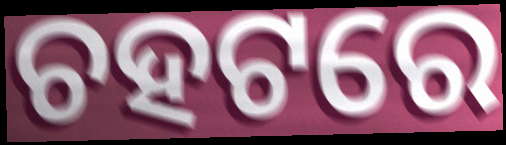
ଚହଟରେ